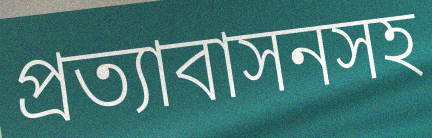
প্রত্যাবাসনসহ